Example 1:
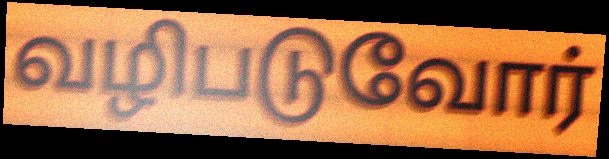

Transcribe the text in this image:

வழிபடுவோர்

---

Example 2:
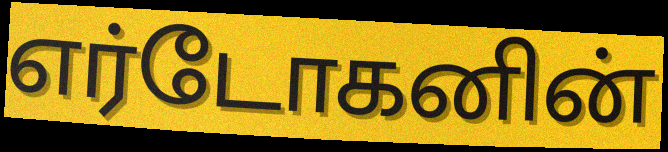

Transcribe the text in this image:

எர்டோகனின்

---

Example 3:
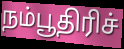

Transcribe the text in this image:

நம்பூதிரிச்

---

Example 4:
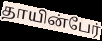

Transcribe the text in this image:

தாயின்பேர்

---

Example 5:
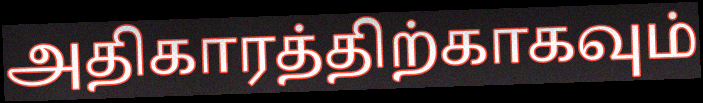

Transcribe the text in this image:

அதிகாரத்திற்காகவும்